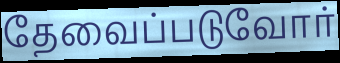
தேவைப்படுவோர்